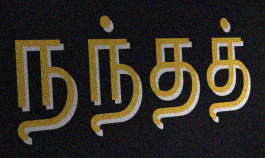
நந்தத்